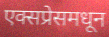
एक्सप्रेसमधून